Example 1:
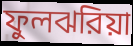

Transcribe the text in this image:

ফুলঝরিয়া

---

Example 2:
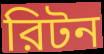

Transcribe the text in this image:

রিটন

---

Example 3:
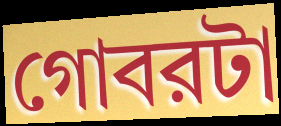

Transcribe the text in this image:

গোবরটা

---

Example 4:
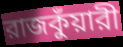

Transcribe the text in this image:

রাজকুঁয়ারী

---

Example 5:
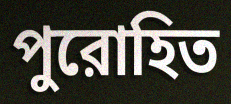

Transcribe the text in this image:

পুরোহিত